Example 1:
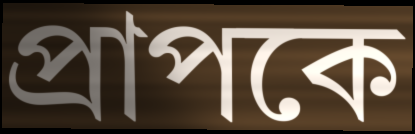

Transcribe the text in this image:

প্রাপকে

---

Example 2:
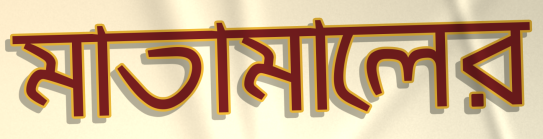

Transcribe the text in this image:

মাতামালের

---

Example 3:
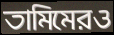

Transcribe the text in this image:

তামিমেরও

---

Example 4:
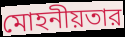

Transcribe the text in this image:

মোহনীয়তার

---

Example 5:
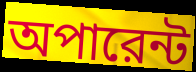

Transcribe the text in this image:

অপারেন্ট